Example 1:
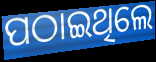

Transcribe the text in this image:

ପଠାଇଥିଲେ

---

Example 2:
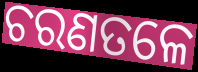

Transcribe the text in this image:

ଚରଣତଳେ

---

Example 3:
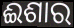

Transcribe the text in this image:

ଈଶାର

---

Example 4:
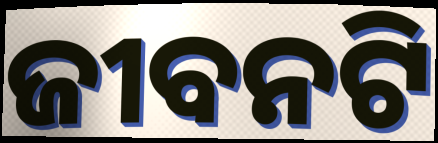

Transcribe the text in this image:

ଜୀବନଟି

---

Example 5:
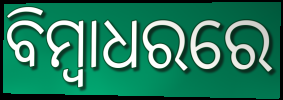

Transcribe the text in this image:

ବିମ୍ୱାଧରରେ